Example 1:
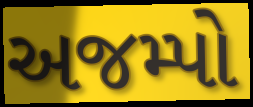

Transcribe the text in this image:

અજમ્પો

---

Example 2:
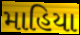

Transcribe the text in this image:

માહિયા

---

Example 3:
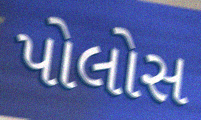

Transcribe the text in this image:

પોલોસ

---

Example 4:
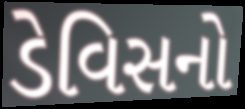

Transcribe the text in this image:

ડેવિસનો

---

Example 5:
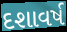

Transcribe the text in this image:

દશાવર્ષ